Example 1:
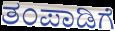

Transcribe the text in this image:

ತಂಪಾಡಿಗೆ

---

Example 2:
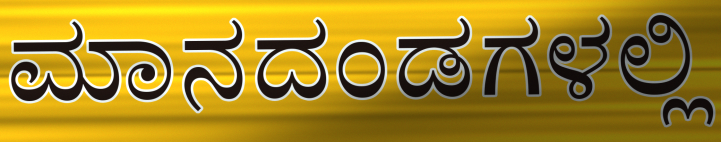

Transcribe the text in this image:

ಮಾನದಂಡಗಳಲ್ಲಿ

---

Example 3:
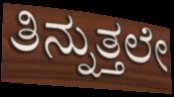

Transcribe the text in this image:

ತಿನ್ನುತ್ತಲೇ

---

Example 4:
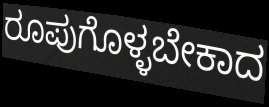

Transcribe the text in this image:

ರೂಪುಗೊಳ್ಳಬೇಕಾದ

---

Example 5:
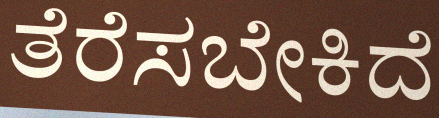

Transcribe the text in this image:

ತೆರೆಸಬೇಕಿದೆ